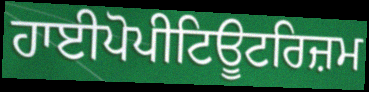
ਹਾਈਪੋਪੀਟਿਊਟਰਿਜ਼ਮ